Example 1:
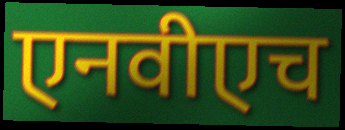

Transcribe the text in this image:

एनवीएच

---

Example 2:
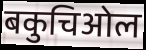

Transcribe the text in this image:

बकुचिओल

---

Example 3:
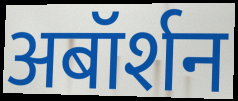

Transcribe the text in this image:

अबॉर्शन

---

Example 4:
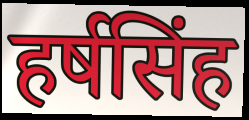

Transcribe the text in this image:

हर्षसिंह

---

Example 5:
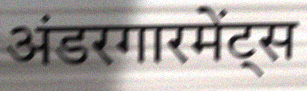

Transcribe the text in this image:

अंडरगारमेंट्स